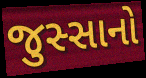
જુસ્સાનો